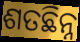
ଶତଛିନ୍ନ